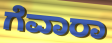
ಗೆವಾರಾ